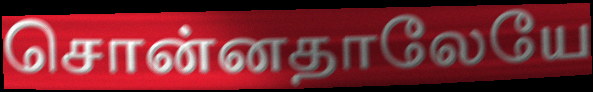
சொன்னதாலேயே